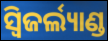
ସ୍ୱିଜର୍ଲ୍ୟାଣ୍ଡ